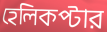
হেলিকপ্টার